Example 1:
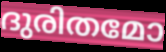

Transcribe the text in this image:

ദുരിതമോ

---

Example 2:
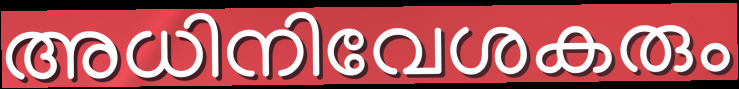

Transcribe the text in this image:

അധിനിവേശകരും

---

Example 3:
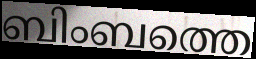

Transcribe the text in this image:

ബിംബത്തെ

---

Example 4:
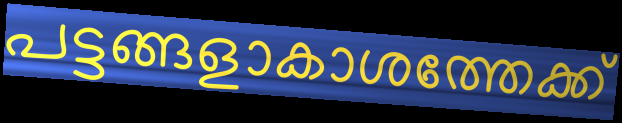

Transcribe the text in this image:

പട്ടങ്ങളാകാശത്തേക്ക്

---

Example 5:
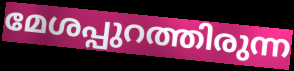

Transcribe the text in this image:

മേശപ്പുറത്തിരുന്ന